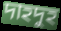
দাহদুহ